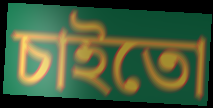
চাইতো